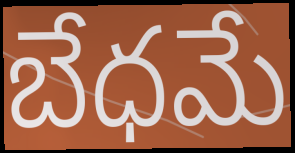
బేధమే